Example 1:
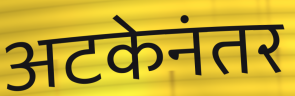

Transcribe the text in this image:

अटकेनंतर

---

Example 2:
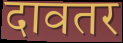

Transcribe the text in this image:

दावतर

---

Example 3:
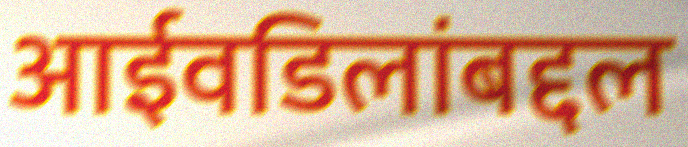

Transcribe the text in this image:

आईवडिलांबद्दल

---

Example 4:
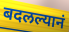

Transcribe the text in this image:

बदलल्यानं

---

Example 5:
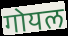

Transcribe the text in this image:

गोयल